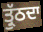
ਤ੍ਰੁੱਠਦਾ